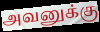
அவனுக்கு